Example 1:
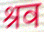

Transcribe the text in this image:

श्रव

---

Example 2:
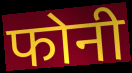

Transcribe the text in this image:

फोनी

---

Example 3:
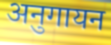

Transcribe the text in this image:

अनुगायन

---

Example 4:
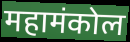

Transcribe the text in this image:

महामंकोल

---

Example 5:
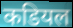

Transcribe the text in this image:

कडियल